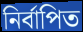
নির্বাপিত